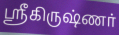
ஶ்ரீகிருஷ்ணர்